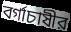
বর্গাচাষীর